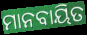
ମାନବାୟିତ